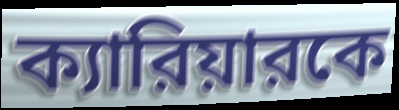
ক্যারিয়ারকে